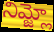
నిమ్జ్లో